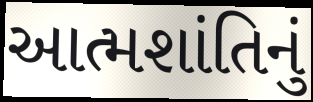
આત્મશાંતિનું